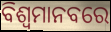
ବିଶ୍ୱମାନବରେ